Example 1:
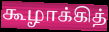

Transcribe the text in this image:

கூழாக்கித்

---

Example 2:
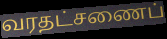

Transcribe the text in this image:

வரதட்சணைப்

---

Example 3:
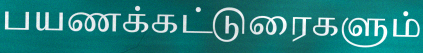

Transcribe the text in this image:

பயணக்கட்டுரைகளும்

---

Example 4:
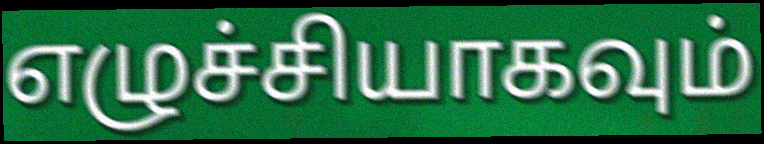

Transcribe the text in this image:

எழுச்சியாகவும்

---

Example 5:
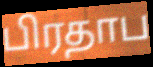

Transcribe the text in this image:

பிரதாப